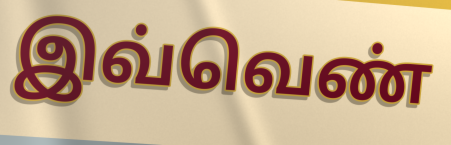
இவ்வெண்